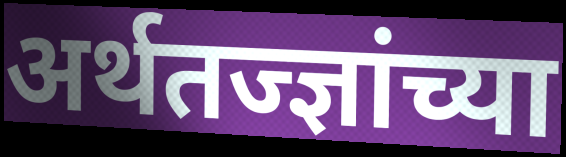
अर्थतज्ज्ञांच्या